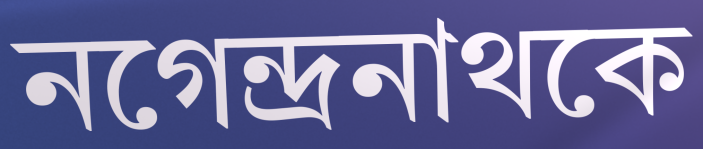
নগেন্দ্রনাথকে